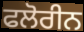
ਫਲੋਰੀਨ